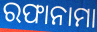
ରଫାନାମା